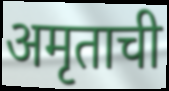
अमृताची